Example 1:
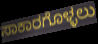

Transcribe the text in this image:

ಸಾಕಾರಗೊಳ್ಳಲು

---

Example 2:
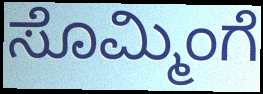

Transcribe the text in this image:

ಸೊಮ್ಮಿಂಗೆ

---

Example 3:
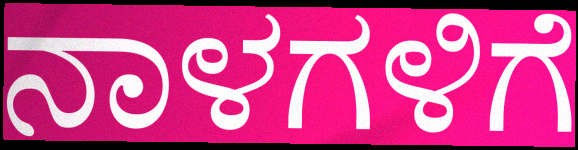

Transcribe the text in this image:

ನಾಳಗಳಿಗೆ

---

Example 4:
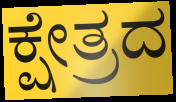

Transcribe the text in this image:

ಕ್ಷೇತ್ರದ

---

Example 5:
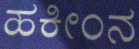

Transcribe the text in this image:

ಹಕೀಂನ